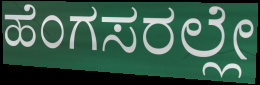
ಹೆಂಗಸರಲ್ಲೇ